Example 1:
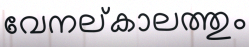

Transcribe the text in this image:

വേനല്കാലത്തും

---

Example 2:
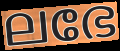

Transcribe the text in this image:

ലഭേ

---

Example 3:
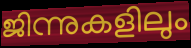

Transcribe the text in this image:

ജിന്നുകളിലും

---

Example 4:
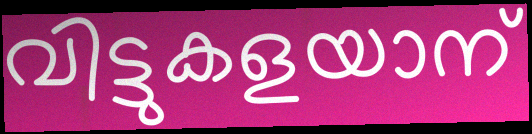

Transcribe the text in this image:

വിട്ടുകളയാന്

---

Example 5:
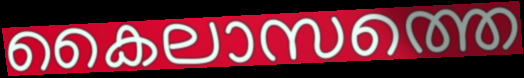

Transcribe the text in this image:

കൈലാസത്തെ